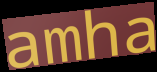
amha